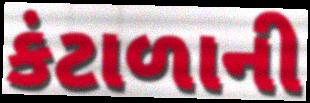
કંટાળાની